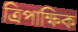
ত্রিপাক্ষিক